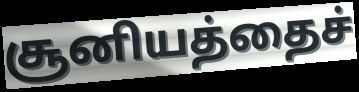
சூனியத்தைச்